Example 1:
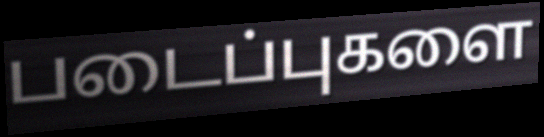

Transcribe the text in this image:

படைப்புகளை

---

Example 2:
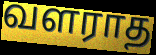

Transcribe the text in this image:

வளராத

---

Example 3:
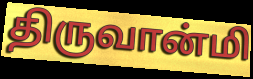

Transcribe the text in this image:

திருவான்மி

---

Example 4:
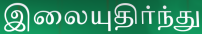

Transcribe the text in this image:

இலையுதிர்ந்து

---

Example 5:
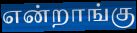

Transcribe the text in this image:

என்றாங்கு